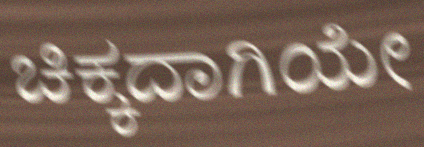
ಚಿಕ್ಕದಾಗಿಯೇ